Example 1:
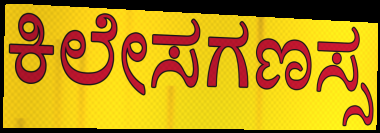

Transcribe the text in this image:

ಕಿಲೇಸಗಣಸ್ಸ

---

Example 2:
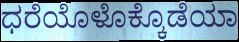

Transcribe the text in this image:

ಧರೆಯೊಳೊಕ್ಕೊಡೆಯಾ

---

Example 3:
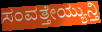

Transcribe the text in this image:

ಸಂವತ್ತೇಯ್ಯುನ್ತಿ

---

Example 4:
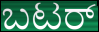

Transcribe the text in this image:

ಬಟರ್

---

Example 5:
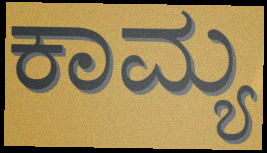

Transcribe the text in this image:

ಕಾಮ್ಯ